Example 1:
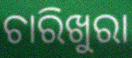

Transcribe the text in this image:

ଚାରିଖୁରା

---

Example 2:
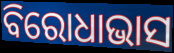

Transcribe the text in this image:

ବିରୋଧାଭାସ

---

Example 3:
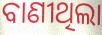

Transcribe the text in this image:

ବାଣୀଥିଲା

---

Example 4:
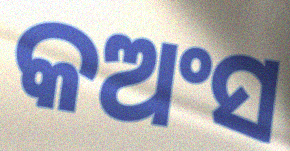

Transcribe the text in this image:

କଅଂସ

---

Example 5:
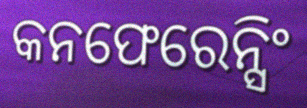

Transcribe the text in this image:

କନଫେରେନ୍ସିଂ